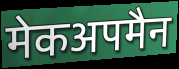
मेकअपमैन